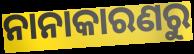
ନାନାକାରଣରୁ